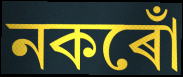
নকৰোঁ